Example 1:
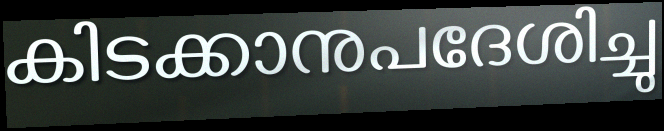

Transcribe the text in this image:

കിടക്കാനുപദേശിച്ചു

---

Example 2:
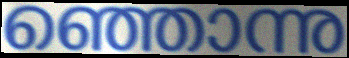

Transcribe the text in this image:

ഞ്ഞൊന്നു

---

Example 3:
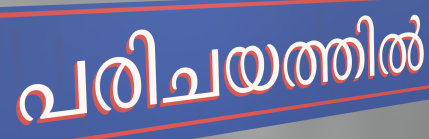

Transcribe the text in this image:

പരിചയത്തിൽ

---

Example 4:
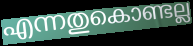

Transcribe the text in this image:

എന്നതുകൊണ്ടല്ല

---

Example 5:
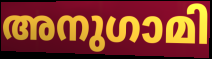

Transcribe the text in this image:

അനുഗാമി